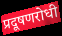
प्रदूषणरोधी